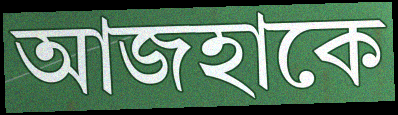
আজহাকে